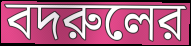
বদরুলের